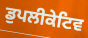
ਡੁਪਲੀਕੇਟਿਵ